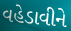
વહેડાવીને